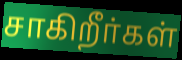
சாகிறீர்கள்